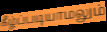
கீழ்ப்படியாமலும்